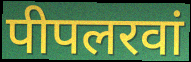
पीपलरवां